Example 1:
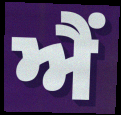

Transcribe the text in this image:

ਐੰ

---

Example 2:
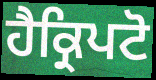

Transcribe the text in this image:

ਹੈਕ੍ਰਿਪਟੋ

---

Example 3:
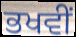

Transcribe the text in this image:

ਭਖਵੀਂ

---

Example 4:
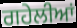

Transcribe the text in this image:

ਗਹੇਲੀਆਂ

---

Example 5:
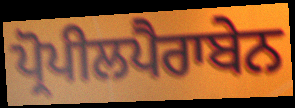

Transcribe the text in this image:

ਪ੍ਰੋਪੀਲਪੈਰਾਬੇਨ